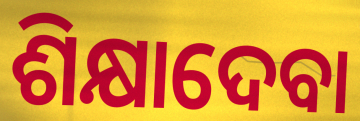
ଶିକ୍ଷାଦେବା